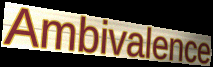
Ambivalence